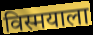
विस्मयाला